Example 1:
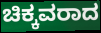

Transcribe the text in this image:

ಚಿಕ್ಕವರಾದ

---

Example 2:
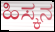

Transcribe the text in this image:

ಹಿಸ್ಕನ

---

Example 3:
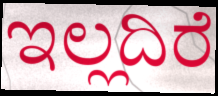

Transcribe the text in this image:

ಇಲ್ಲದಿರೆ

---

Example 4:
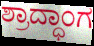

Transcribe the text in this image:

ಶ್ರಾದ್ಧಾಂಗ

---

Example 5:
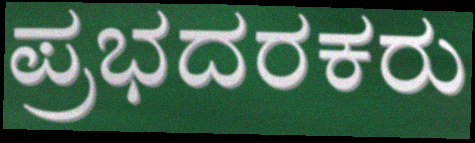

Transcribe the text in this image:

ಪ್ರಭದರಕರು